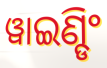
ୱାଇଣ୍ଡିଂ